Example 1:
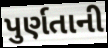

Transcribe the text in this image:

પુર્ણતાની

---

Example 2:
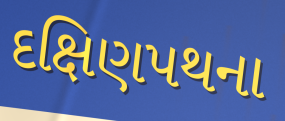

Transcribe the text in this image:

દક્ષિણપથના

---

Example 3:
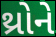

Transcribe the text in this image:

થ્રોને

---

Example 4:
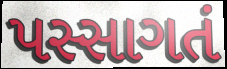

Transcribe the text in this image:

પસ્સાગતં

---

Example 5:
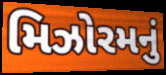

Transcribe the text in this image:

મિઝોરમનું